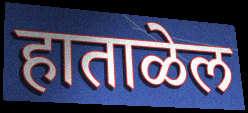
हाताळेल